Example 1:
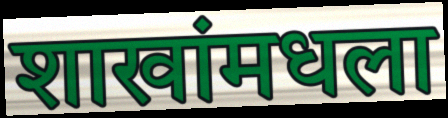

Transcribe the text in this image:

शाखांमधला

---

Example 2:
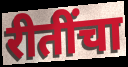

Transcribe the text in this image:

रीतींचा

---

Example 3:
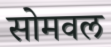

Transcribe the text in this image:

सोमवल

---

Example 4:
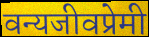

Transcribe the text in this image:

वन्यजीवप्रेमी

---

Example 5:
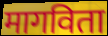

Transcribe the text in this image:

मागविता